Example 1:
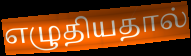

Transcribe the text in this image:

எழுதியதால்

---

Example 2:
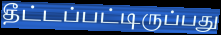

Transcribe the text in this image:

தீட்டப்பட்டிருப்பது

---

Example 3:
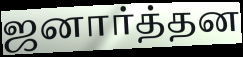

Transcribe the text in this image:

ஜனார்த்தன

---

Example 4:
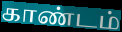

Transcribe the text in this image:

காண்டம்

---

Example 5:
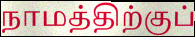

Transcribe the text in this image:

நாமத்திற்குப்